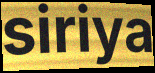
siriya